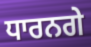
ਧਾਰਨਗੇ